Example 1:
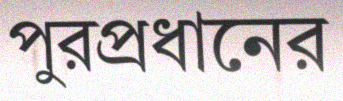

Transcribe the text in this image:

পুরপ্রধানের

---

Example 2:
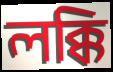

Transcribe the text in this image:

লক্কি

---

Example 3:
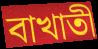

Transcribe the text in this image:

বাখাতী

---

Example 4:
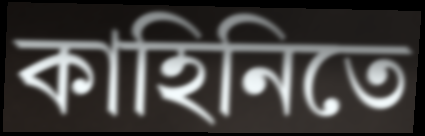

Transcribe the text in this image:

কাহিনিতে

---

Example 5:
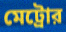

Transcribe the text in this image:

মেট্রোর